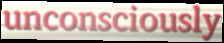
unconsciously